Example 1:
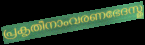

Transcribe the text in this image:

പ്രകൃതീനാംവരണഭേദസ്തു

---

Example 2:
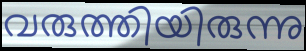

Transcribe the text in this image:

വരുത്തിയിരുന്നു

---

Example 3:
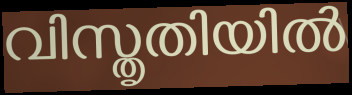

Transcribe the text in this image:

വിസ്തൃതിയിൽ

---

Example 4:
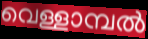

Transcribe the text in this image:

വെള്ളാമ്പൽ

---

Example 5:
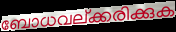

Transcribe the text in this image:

ബോധവല്ക്കരിക്കുക